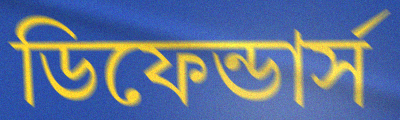
ডিফেন্ডার্স